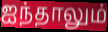
ஐந்தாலும்